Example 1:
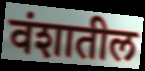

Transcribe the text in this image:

वंशातील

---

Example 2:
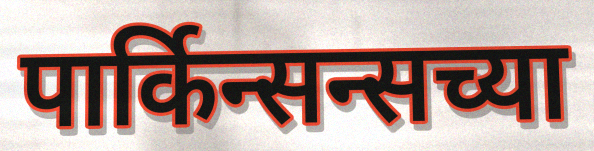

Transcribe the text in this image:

पार्किन्सन्सच्या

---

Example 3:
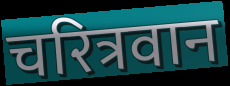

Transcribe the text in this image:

चरित्रवान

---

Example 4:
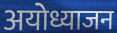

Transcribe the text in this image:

अयोध्याजन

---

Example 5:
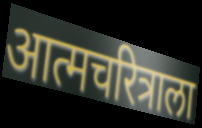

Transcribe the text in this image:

आत्मचरित्राला